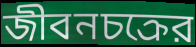
জীবনচক্রের